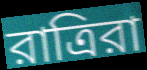
রাত্রিরা